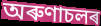
অৰুণাচলৰ